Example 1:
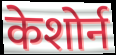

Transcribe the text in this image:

केशोर्न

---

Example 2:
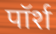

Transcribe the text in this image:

पॉर्श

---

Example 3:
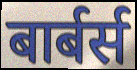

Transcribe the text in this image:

बार्बर्स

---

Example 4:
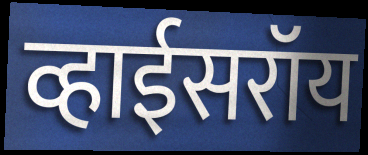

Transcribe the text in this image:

व्हाईसरॉय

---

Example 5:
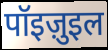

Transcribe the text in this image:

पॉइज़ुइल